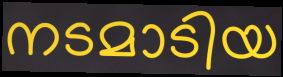
നടമാടിയ